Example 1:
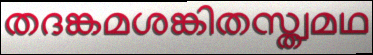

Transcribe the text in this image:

തദങ്കമശങ്കിതസ്ത്വമഥ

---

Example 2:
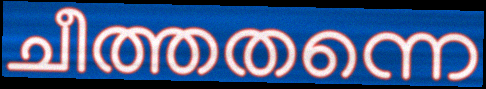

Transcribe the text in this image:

ചീത്തതന്നെ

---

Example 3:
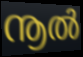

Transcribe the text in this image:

നൂൽ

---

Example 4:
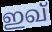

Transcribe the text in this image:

ഇഖ്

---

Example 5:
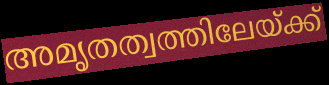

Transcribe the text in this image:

അമൃതത്വത്തിലേയ്ക്ക്